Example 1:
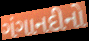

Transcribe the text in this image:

ગંગાનદીનો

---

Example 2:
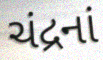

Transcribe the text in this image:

ચંદ્રનાં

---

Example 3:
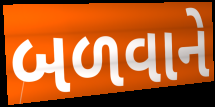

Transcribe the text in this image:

બળવાને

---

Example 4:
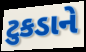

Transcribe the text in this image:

ટુકડાને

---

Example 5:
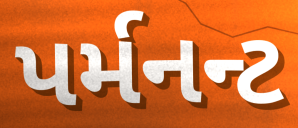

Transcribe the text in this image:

પર્મનન્ટ